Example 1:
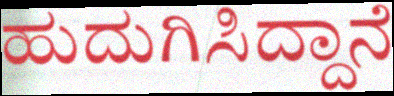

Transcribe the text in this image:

ಹುದುಗಿಸಿದ್ದಾನೆ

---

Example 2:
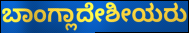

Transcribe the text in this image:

ಬಾಂಗ್ಲಾದೇಶೀಯರು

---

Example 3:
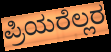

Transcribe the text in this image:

ಪ್ರಿಯರೆಲ್ಲರ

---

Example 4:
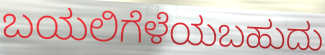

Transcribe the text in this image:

ಬಯಲಿಗೆಳೆಯಬಹುದು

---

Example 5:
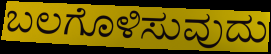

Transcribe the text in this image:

ಬಲಗೊಳಿಸುವುದು